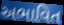
અભાવિત